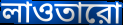
লাওতারো